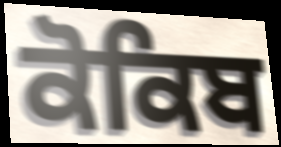
ਕੋਕਿਬ